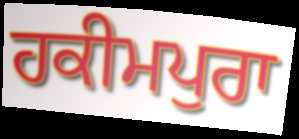
ਹਕੀਮਪੁਰਾ